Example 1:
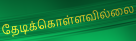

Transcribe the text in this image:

தேடிக்கொள்ளவில்லை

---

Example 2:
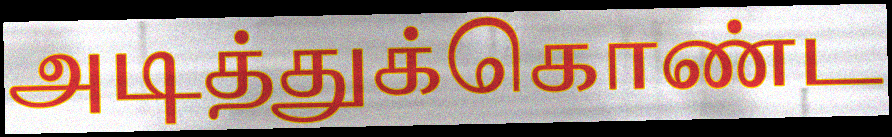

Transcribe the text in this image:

அடித்துக்கொண்ட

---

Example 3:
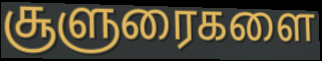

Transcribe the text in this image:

சூளுரைகளை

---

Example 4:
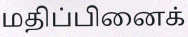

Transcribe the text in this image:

மதிப்பினைக்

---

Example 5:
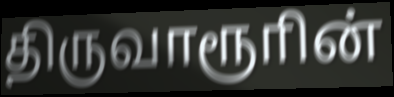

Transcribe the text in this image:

திருவாரூரின்